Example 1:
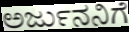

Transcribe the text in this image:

ಅರ್ಜುನನಿಗೆ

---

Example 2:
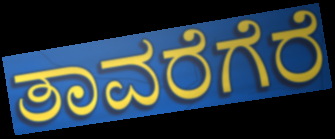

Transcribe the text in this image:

ತಾವರೆಗೆರೆ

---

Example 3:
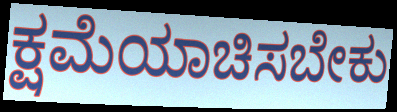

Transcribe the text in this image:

ಕ್ಷಮೆಯಾಚಿಸಬೇಕು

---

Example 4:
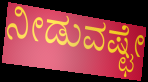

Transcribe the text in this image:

ನೀಡುವಷ್ಟೇ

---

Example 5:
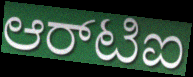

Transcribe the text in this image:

ಆರ್‌ಟಿಐ